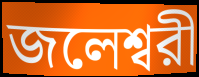
জলেশ্বরী